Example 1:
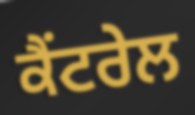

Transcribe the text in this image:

ਕੈਂਟਰੇਲ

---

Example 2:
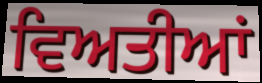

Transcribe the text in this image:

ਵਿਅਤੀਆਂ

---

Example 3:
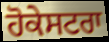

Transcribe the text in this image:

ਹੋਕੇਸਟਰਾ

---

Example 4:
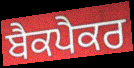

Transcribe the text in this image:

ਬੈਕਪੈਕਰ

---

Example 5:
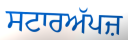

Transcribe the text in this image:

ਸਟਾਰਅੱਪਜ਼